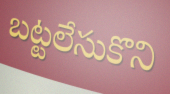
బట్టలేసుకొని